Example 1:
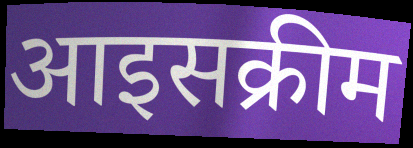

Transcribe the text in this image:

आइसक्रीम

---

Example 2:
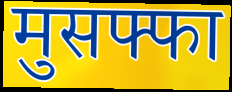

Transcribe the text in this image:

मुसफ्फा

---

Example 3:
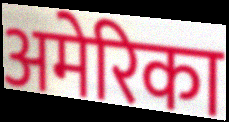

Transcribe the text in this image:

अमेरिका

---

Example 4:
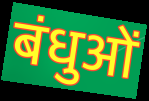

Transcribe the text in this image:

बंधुओं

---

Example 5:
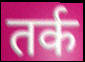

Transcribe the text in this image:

तर्क